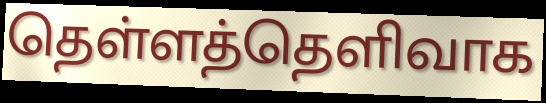
தெள்ளத்தெளிவாக